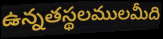
ఉన్నతస్థలములమీది